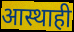
आस्थाही